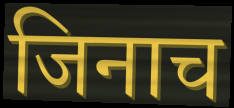
जिनाच